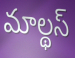
మాల్థస్